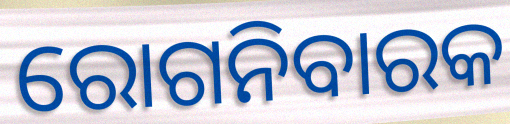
ରୋଗନିବାରକ